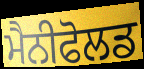
ਮੈਨੀਫੋਲਡ